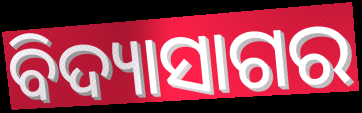
ବିଦ୍ୟାସାଗର